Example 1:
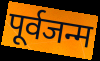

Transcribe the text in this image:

पूर्वजन्म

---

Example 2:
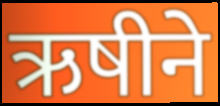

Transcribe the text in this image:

ऋषीने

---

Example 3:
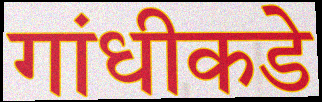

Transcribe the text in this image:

गांधीकडे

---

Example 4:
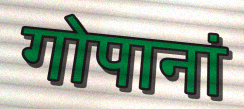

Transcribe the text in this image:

गोपानां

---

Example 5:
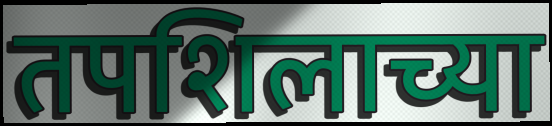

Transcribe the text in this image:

तपशिलाच्या